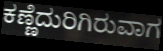
ಕಣ್ಣೆದುರಿಗಿರುವಾಗ